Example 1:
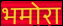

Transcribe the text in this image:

भमोरा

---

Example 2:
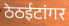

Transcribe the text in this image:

ठेठईटांगर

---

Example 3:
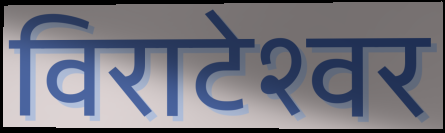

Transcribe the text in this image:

विराटेश्वर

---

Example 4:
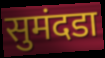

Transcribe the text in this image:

सुमंदडा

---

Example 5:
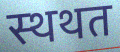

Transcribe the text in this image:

स्थथत